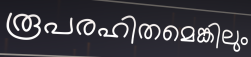
രൂപരഹിതമെങ്കിലും